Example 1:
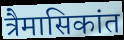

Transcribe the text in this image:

त्रैमासिकांत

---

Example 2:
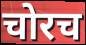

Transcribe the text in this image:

चोरच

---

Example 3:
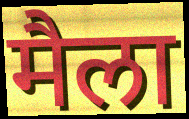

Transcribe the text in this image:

मैला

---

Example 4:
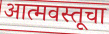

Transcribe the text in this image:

आत्मवस्तूचा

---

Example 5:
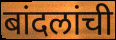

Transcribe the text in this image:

बांदलांची